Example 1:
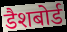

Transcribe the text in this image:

डैशबोर्ड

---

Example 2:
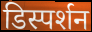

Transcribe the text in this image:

डिस्पर्शन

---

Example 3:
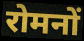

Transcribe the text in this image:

रोमनों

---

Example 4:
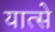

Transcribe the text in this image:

यात्से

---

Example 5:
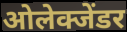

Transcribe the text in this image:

ओलेक्जेंडर